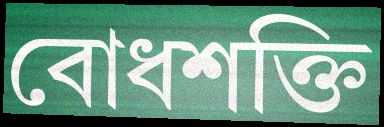
বোধশক্তি